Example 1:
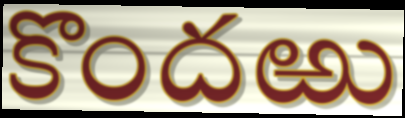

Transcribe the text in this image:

కొందఱు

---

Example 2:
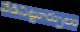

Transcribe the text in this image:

వేడినిట్టూర్పులు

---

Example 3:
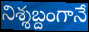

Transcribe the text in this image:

నిశ్శబ్దంగానే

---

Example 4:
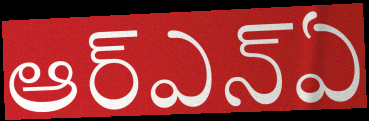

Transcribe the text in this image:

ఆర్ఎన్ఏ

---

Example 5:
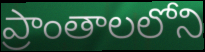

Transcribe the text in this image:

ప్రాంతాలలోని